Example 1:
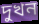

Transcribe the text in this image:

দুখন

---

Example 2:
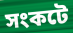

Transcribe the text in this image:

সংকটে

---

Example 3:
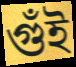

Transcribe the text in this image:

গুঁই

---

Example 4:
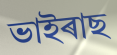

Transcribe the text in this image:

ভাইৰাছ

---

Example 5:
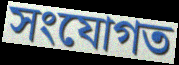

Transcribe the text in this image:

সংযোগত